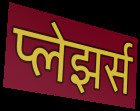
प्लेझर्स